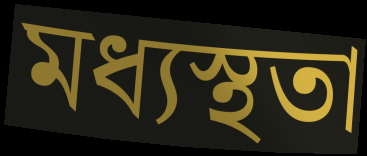
মধ্যস্থতা